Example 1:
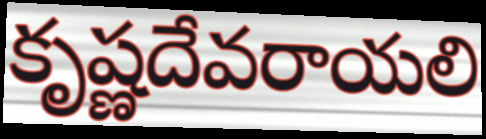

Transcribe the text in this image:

కృష్ణదేవరాయలి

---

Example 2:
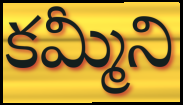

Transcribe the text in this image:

కమ్మీని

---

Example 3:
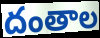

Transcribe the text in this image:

దంతాల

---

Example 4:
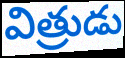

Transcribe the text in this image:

విత్రుడు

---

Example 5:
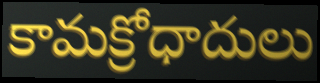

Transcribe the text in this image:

కామక్రోధాదులు